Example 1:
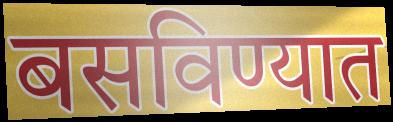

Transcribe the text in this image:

बसविण्यात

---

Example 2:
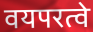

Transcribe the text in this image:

वयपरत्वे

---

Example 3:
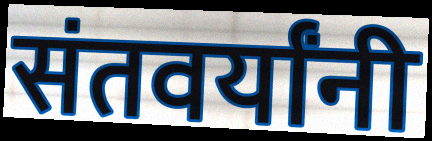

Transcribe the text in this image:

संतवर्यांनी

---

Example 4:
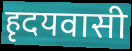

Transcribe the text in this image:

हृदयवासी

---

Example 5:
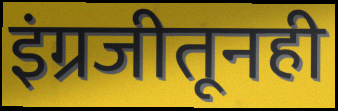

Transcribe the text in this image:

इंग्रजीतूनही